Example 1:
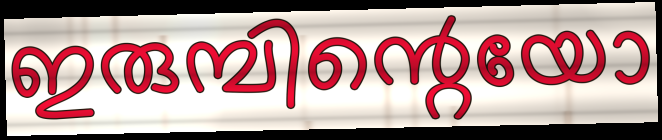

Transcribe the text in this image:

ഇരുമ്പിന്റെയോ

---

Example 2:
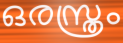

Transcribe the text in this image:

ഒരസ്ത്രം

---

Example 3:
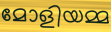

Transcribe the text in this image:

മോളിയമ്മ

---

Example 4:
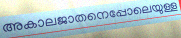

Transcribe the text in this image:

അകാലജാതനെപ്പോലെയുള്ള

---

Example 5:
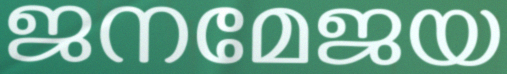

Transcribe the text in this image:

ജനമേജയ